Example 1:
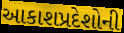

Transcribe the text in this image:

આકાશપ્રદેશોની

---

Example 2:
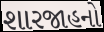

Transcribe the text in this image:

શારજાહનો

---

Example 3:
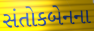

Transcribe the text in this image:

સંતોકબેનના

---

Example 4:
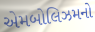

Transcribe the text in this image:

એમબોલિઝમનો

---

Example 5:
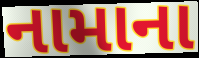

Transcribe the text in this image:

નામાના